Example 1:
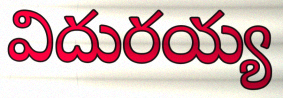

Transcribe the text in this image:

విదురయ్య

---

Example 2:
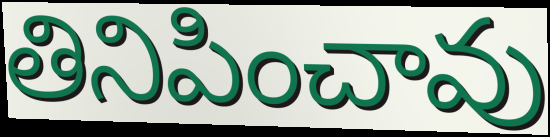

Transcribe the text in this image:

తినిపించావు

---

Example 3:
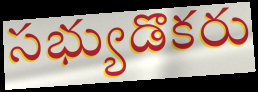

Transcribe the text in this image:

సభ్యుడొకరు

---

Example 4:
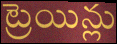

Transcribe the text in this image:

ట్రెయిన్లు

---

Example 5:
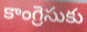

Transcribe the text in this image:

కాంగ్రెసుకు